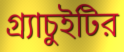
গ্র্যাচুইটির